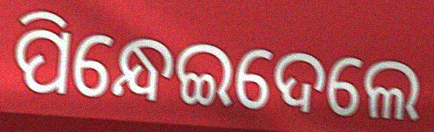
ପିନ୍ଧେଇଦେଲେ